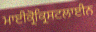
ਮਾਈਕ੍ਰੋਕ੍ਰਿਸਟਲਾਈਨ